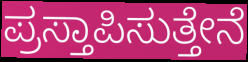
ಪ್ರಸ್ತಾಪಿಸುತ್ತೇನೆ